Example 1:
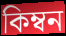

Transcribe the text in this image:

কিম্বন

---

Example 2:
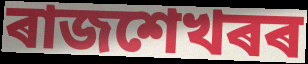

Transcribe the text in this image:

ৰাজশেখৰৰ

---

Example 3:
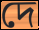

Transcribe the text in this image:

দে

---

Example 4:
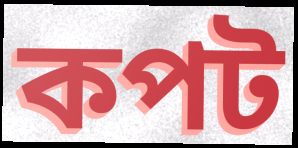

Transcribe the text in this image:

কপট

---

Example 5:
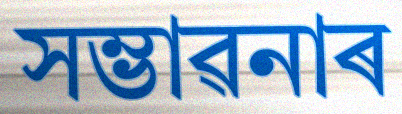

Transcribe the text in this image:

সম্ভাৱনাৰ